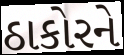
ઠાકોરને